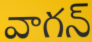
వాగన్